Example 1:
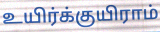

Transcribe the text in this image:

உயிர்க்குயிராம்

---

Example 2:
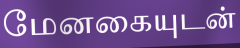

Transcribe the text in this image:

மேனகையுடன்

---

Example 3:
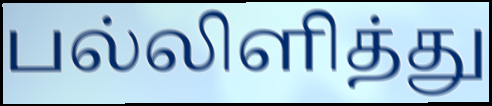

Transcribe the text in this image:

பல்லிளித்து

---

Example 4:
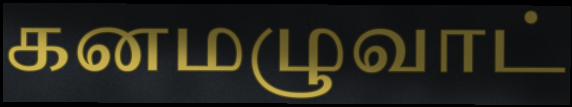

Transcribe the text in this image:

கனமழுவாட்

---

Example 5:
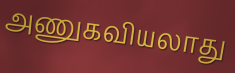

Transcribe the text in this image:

அணுகவியலாது